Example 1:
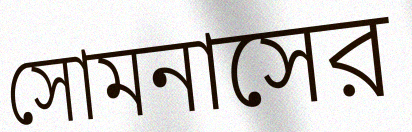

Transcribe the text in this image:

সোমনাসের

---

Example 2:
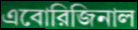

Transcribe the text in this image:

এবোরিজিনাল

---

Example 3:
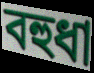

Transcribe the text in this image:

বহুধা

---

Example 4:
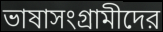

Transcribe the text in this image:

ভাষাসংগ্রামীদের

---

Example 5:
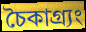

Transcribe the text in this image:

চৈকাগ্র্যং